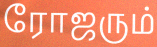
ரோஜரும்